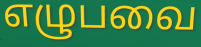
எழுபவை